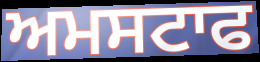
ਅਮਸਟਾਫ